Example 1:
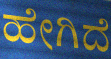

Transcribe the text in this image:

ಹೇಗಿದೆ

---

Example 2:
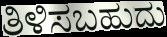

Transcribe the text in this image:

ತಿಳಿಸಬಹುದು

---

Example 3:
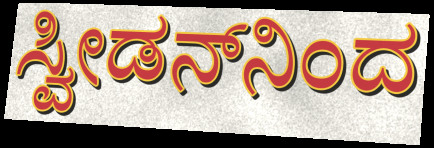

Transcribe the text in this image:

ಸ್ವೀಡನ್‌ನಿಂದ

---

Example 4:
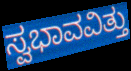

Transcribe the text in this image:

ಸ್ವಭಾವವಿತ್ತು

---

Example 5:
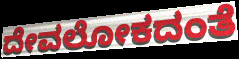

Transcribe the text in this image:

ದೇವಲೋಕದಂತೆ